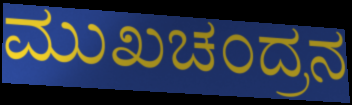
ಮುಖಚಂದ್ರನ